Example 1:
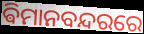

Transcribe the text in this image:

ଵିମାନବନ୍ଦରରେ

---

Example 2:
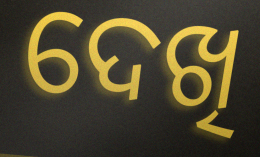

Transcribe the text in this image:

ଦେଖି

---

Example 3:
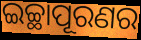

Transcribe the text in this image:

ଇଚ୍ଛାପୂରଣର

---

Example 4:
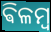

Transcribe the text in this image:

ଵିଳମ୍ବ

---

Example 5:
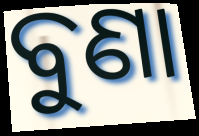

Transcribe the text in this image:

ବୁଣା